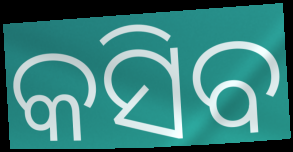
କସିବ